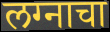
लग्नाचा